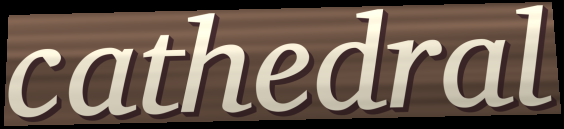
cathedral